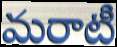
మరాటీ